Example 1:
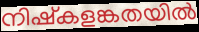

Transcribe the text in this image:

നിഷ്കളങ്കതയിൽ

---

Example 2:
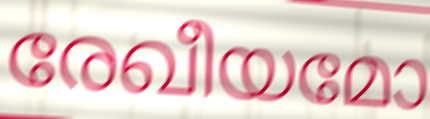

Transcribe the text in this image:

രേഖീയമോ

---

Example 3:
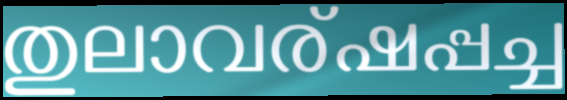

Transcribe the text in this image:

തുലാവര്ഷപ്പച്ച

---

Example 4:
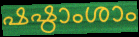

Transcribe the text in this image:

ഷഷ്ഠാംശാം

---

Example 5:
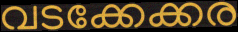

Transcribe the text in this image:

വടക്കേക്കര